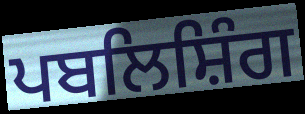
ਪਬਲਿਸ਼ਿੰਗ